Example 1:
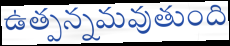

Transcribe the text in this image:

ఉత్పన్నమవుతుంది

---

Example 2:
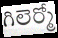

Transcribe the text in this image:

గిలెర్మో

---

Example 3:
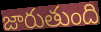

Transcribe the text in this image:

జారుతుంది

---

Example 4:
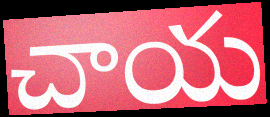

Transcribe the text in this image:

చాయ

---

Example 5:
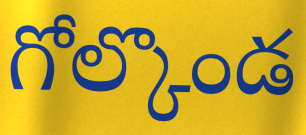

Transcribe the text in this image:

గోల్కొండ